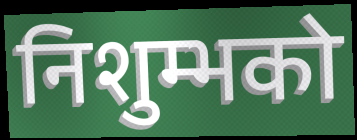
निशुम्भको